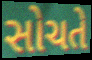
સોચતે